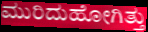
ಮುರಿದುಹೋಗಿತ್ತು